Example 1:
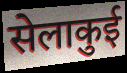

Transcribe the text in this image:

सेलाकुई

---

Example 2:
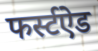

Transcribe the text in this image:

फर्स्टऐड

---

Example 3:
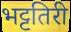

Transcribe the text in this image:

भट्टतिरी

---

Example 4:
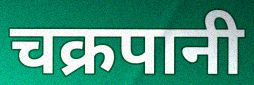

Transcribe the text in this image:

चक्रपानी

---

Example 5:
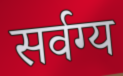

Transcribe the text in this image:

सर्वग्य